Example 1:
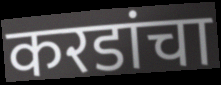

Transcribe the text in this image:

करडांचा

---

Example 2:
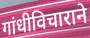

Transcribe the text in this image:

गांधीविचाराने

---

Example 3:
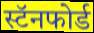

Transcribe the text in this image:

स्टॅनफोर्ड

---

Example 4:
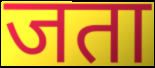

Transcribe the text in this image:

जता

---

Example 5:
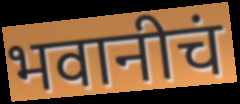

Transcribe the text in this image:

भवानीचं